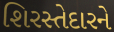
શિરસ્તેદારને